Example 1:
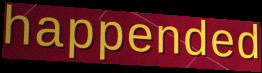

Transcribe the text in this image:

happended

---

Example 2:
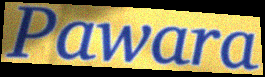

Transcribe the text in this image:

Pawara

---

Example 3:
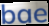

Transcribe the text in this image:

bae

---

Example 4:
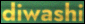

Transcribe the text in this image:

diwashi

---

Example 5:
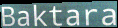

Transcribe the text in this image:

Baktara